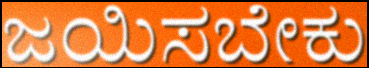
ಜಯಿಸಬೇಕು